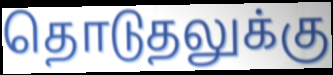
தொடுதலுக்கு